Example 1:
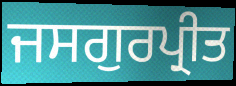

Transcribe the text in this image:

ਜਸਗੁਰਪ੍ਰੀਤ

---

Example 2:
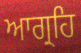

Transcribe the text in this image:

ਆਗ੍ਰਹਿ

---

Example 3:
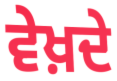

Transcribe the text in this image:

ਵੇਖ਼ਦੇ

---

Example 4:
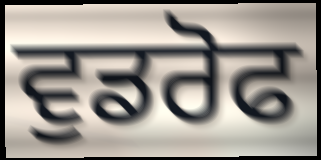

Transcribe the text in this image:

ਵੁਡਰੋਫ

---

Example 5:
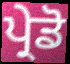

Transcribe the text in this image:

ਪ੍ਰੇਡੋ